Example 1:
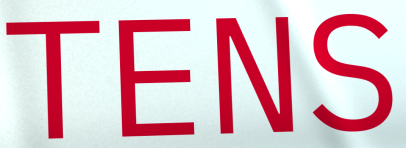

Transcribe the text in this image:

TENS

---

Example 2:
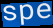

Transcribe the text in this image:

spe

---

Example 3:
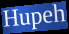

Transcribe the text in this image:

Hupeh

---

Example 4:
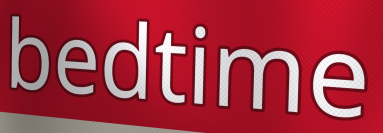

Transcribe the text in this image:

bedtime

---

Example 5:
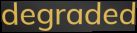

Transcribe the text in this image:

degraded